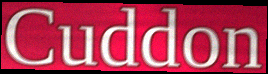
Cuddon